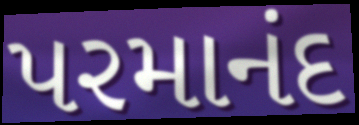
પરમાનંદ